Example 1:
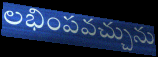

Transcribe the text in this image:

లభింపవచ్చును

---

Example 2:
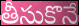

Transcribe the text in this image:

తీసుకొనే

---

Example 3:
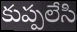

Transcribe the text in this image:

కుప్పలేసి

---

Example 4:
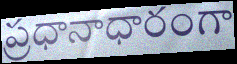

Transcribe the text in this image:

ప్రధానాధారంగా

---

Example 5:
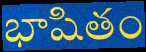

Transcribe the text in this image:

భాషితం